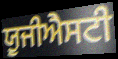
ਯੂਜੀਐਸਟੀ